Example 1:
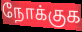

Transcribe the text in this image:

நோக்குக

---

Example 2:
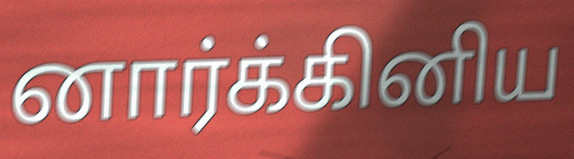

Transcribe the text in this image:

னார்க்கினிய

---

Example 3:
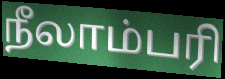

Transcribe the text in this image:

நீலாம்பரி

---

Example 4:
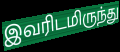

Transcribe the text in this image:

இவரிடமிருந்து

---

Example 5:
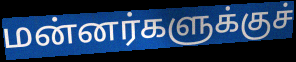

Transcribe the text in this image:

மன்னர்களுக்குச்